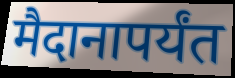
मैदानापर्यंत